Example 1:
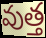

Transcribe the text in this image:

వుత్త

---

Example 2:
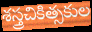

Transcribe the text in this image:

శస్త్రచికిత్సకుల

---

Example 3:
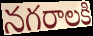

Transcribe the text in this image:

నగరాలకి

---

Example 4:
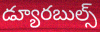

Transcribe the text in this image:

డ్యూరబుల్స్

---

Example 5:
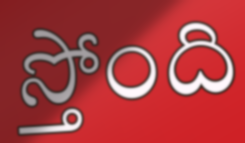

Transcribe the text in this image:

స్తోంది